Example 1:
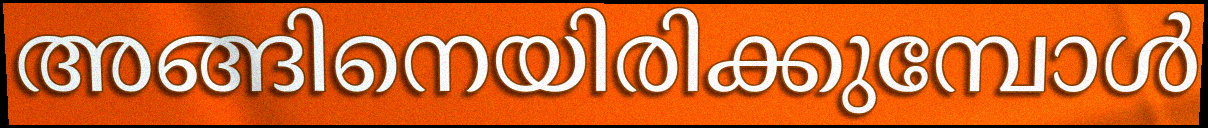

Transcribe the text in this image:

അങ്ങിനെയിരിക്കുമ്പോൾ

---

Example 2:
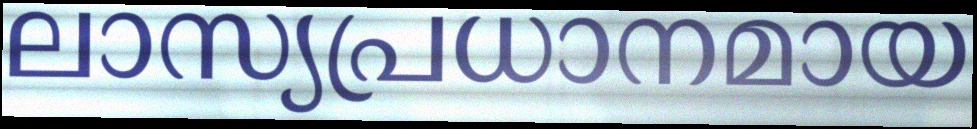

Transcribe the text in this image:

ലാസ്യപ്രധാനമായ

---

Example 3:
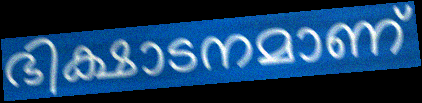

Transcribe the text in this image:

ഭിക്ഷാടനമാണ്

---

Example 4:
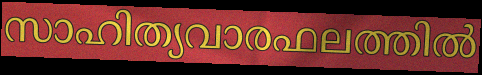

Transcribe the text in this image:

സാഹിത്യവാരഫലത്തിൽ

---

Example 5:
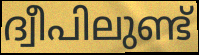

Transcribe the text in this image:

ദ്വീപിലുണ്ട്